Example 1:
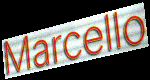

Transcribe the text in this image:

Marcello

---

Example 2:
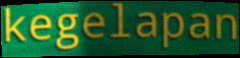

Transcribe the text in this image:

kegelapan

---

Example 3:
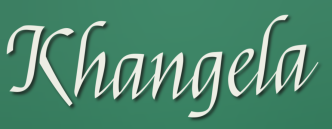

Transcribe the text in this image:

Khangela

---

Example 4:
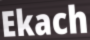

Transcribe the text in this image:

Ekach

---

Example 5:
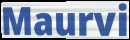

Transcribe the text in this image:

Maurvi